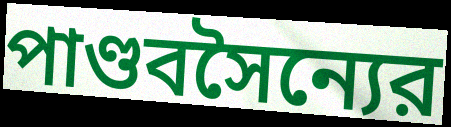
পাণ্ডবসৈন্যের